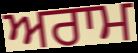
ਅਰਾਮ